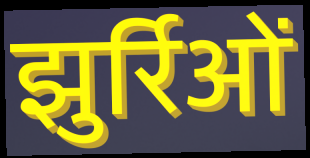
झुर्रिओं